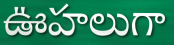
ఊహలుగా